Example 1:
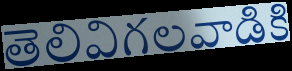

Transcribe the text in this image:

తెలివిగలవాడికి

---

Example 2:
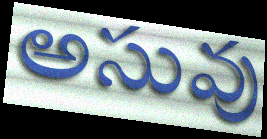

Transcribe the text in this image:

అసువు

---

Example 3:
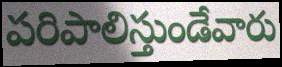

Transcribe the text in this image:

పరిపాలిస్తుండేవారు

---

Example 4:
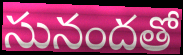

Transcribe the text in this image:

సునందతో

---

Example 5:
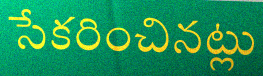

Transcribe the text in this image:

సేకరించినట్లు